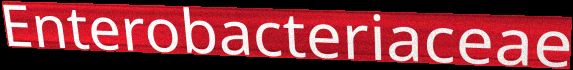
Enterobacteriaceae